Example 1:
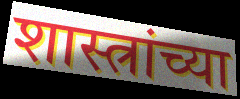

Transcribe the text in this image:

शास्त्रांच्या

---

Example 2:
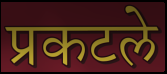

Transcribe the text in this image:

प्रकटले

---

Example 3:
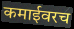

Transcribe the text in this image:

कमाईवरच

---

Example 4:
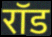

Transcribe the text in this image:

रॉड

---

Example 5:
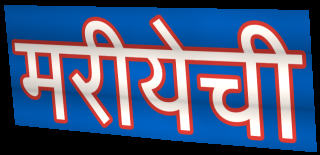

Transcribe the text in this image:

मरीयेची